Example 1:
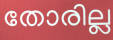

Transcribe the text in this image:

തോരില്ല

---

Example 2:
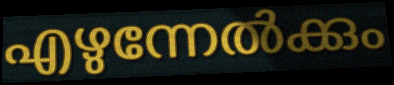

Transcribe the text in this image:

എഴുന്നേൽക്കും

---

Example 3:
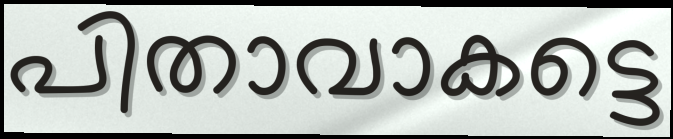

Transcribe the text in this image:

പിതാവാകട്ടെ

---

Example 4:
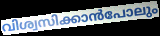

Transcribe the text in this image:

വിശ്വസിക്കാൻപോലും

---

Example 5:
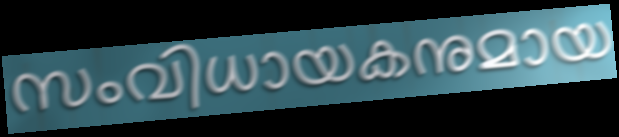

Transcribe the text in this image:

സംവിധായകനുമായ